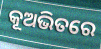
କୂଅଭିତରେ